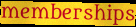
memberships